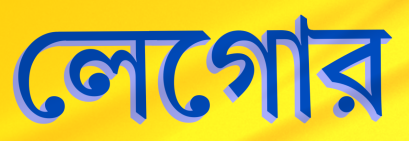
লেগোর